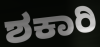
ಶಕಾರಿ